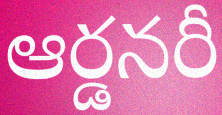
ఆర్డనరీ